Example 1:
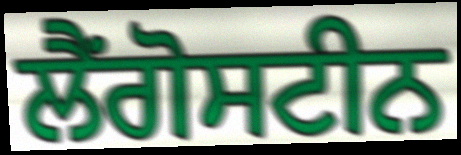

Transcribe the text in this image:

ਲੈਂਗੋਸਟੀਨ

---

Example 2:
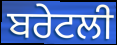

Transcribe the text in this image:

ਬਰੇਟਲੀ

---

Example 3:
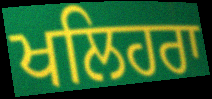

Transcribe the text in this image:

ਖਲਿਹਰਾ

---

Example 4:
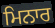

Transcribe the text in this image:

ਮਿਨਾਰ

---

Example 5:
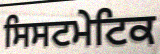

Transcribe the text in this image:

ਸਿਸਟਮੇਟਿਕ